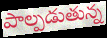
పాల్పడుతున్న